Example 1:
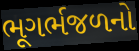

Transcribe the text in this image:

ભૂગર્ભજળનો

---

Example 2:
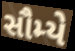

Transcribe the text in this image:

સૌમ્યે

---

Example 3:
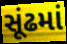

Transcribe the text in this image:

સૂંઢમાં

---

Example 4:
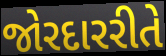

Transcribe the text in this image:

જોરદારરીતે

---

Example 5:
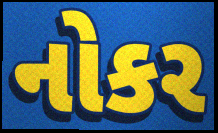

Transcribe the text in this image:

નોકર